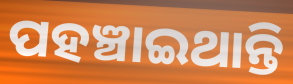
ପହଞ୍ଚାଇଥାନ୍ତି